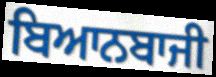
ਬਿਆਨਬਾਜੀ